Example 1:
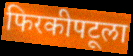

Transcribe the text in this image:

फिरकीपटूला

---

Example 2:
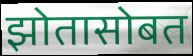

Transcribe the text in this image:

झोतासोबत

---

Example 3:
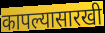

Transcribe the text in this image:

कापल्यासारखी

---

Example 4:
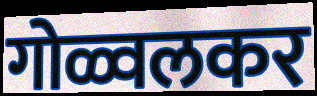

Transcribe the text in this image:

गोळ्वलकर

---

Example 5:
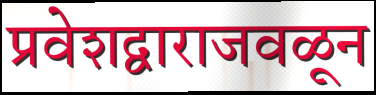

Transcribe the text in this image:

प्रवेशद्वाराजवळून